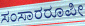
ಸಂಸಾರರೂಪೀ